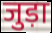
जुड़ा